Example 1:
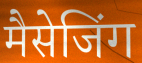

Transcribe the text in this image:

मैसेजिंग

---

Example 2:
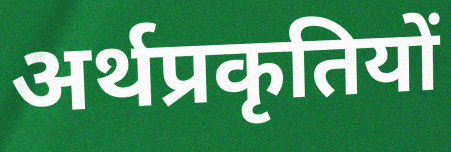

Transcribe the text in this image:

अर्थप्रकृतियों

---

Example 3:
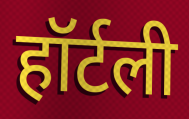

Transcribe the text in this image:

हॉर्टली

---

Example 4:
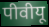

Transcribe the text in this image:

पीवीयू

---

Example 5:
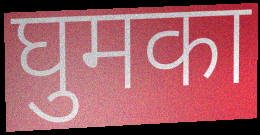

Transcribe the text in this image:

घुमका